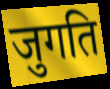
जुगति